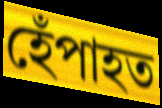
হেঁপাহত